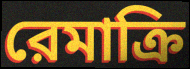
রেমাক্রি